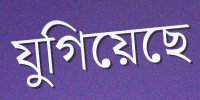
যুগিয়েছে